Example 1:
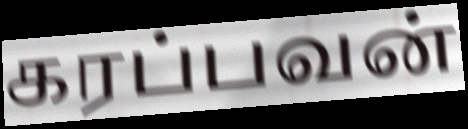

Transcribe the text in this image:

கரப்பவன்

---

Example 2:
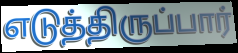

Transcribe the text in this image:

எடுத்திருப்பார்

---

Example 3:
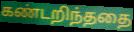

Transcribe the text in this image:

கண்டறிந்ததை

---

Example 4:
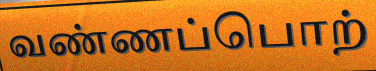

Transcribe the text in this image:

வண்ணப்பொற்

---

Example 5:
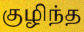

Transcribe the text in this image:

குழிந்த